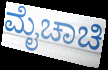
ಮೈಚಾಚಿ